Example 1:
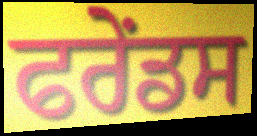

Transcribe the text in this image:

ਫਰੇਂਡਸ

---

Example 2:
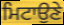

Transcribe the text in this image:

ਮਿਟਾਉਣੇ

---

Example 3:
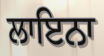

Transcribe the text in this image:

ਲਾਇਨਾ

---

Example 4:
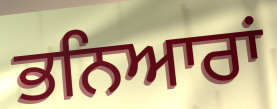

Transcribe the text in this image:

ਭਨਿਆਰਾਂ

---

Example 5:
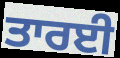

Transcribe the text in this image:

ਤਾਰਈ